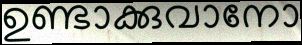
ഉണ്ടാക്കുവാനോ